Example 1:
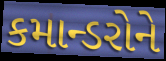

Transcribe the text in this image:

કમાન્ડરોને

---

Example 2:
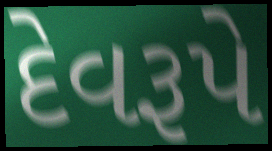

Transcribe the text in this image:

દેવરૂપે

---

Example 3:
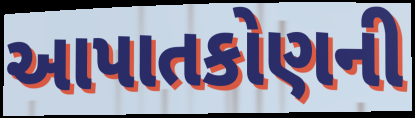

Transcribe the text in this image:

આપાતકોણની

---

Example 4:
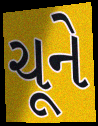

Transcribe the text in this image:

ચૂને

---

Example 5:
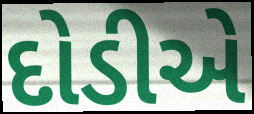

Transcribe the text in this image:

દોડીએ